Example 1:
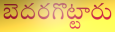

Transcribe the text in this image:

బెదరగొట్టారు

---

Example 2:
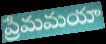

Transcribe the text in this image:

ప్రేమమయా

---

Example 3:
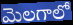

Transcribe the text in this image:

మెలగాలో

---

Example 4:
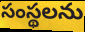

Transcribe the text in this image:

సంస్థలను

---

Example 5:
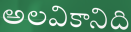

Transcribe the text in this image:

అలవికానిది